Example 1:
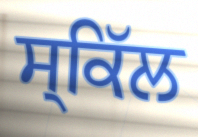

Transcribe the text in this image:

ਸ੍ਕਿੱਲ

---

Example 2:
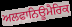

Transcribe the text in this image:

ਅਲਫਾਨਿਊਮੈਰਿਕ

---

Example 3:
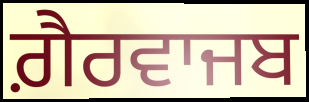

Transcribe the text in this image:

ਗ਼ੈਰਵਾਜਬ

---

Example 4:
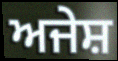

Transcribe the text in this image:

ਅਜੇਸ਼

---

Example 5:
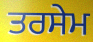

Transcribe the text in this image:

ਤਰਸੇਮ